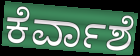
ಕೆರ್ವಾಶೆ